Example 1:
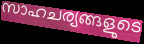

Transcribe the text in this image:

സാഹചര്യങ്ങളുടെ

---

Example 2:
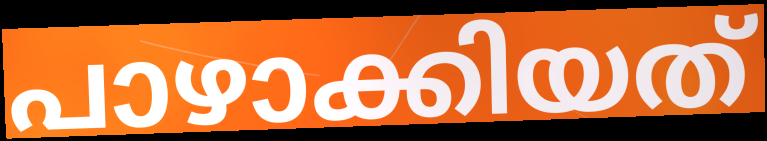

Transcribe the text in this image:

പാഴാക്കിയത്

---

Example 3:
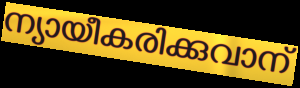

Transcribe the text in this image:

ന്യായീകരിക്കുവാന്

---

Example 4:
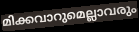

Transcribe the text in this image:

മിക്കവാറുമെല്ലാവരും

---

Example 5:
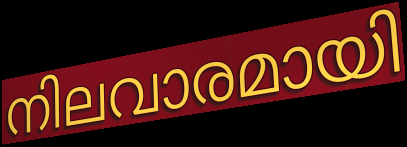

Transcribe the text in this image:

നിലവാരമായി